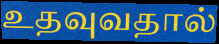
உதவுவதால்